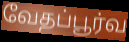
வேதப்பூர்வ